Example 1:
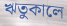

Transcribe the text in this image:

ঋতুকালে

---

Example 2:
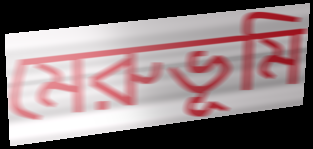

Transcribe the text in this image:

মেরুভূমি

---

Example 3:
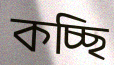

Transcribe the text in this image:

কচ্ছি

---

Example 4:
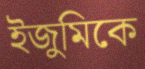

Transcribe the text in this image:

ইজুমিকে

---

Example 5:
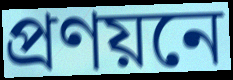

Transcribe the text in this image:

প্রণয়নে